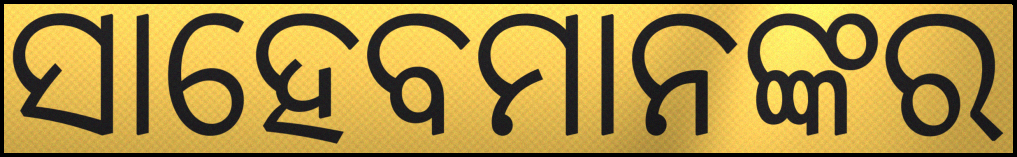
ସାହେବମାନଙ୍କର